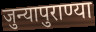
जुन्यापुराण्या